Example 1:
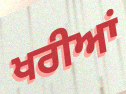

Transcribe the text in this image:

ਖਰੀਆਂ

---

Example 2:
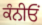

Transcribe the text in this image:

ਕੰਨੀਓਂ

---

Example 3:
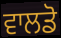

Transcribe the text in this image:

ਵਾਲਡੋ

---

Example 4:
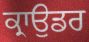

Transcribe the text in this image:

ਕ੍ਰਾਉਡਰ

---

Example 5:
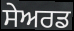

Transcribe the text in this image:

ਸੇਅਰਡ